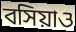
বসিয়াও